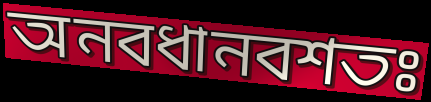
অনবধানবশতঃ